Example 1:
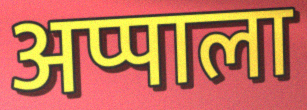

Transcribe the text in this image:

अप्पाला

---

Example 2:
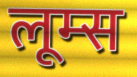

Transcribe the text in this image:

लूम्स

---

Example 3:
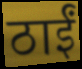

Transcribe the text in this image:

ठाईं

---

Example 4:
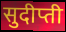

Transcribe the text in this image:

सुदीप्ती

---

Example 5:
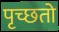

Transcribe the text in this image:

पृच्छतो